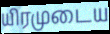
யிரமுடைய